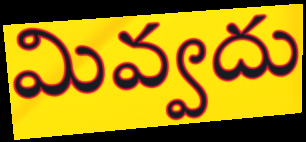
మివ్వదు